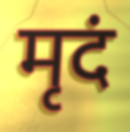
मृदं